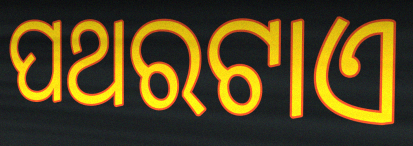
ପଥରଟାଏ